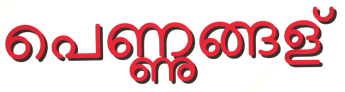
പെണ്ണുങ്ങള്